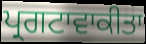
ਪ੍ਰਗਟਾਵਾਕੀਤਾ